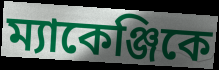
ম্যাকেঞ্জিকে